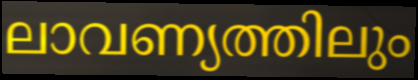
ലാവണ്യത്തിലും